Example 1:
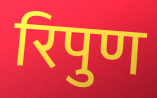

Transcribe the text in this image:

रिपुण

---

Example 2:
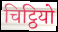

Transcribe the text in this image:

चिट्ठियो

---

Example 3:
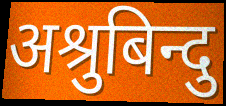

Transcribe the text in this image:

अश्रुबिन्दु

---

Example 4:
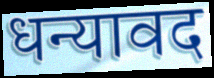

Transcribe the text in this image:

धन्यावद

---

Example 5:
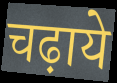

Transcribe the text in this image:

चढ़ाये